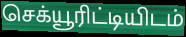
செக்யூரிட்டியிடம்